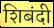
शिबंदी